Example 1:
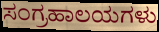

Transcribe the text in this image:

ಸಂಗ್ರಹಾಲಯಗಳು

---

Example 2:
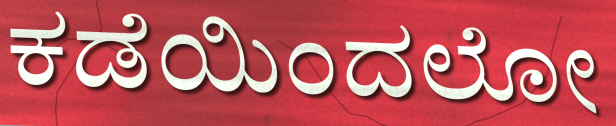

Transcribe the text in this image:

ಕಡೆಯಿಂದಲೋ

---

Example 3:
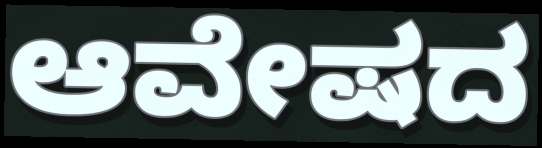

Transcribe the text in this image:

ಆವೇಷದ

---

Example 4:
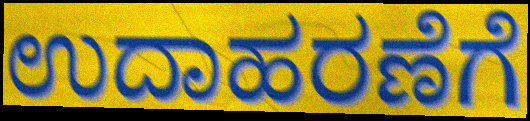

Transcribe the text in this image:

ಉದಾಹರಣೆಗೆ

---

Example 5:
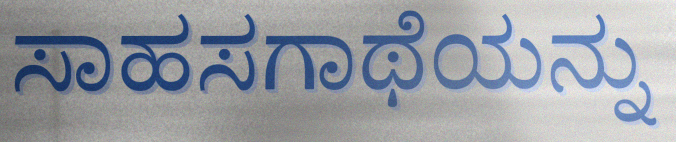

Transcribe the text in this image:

ಸಾಹಸಗಾಥೆಯನ್ನು